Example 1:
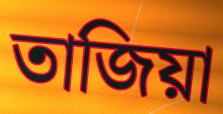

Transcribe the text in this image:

তাজিয়া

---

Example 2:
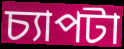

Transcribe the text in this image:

চ্যাপটা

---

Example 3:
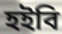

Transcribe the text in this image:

হইবি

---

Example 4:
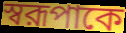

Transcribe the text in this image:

স্বরূপাকে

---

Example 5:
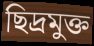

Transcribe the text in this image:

ছিদ্রমুক্ত